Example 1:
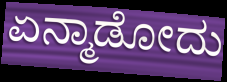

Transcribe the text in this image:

ಏನ್ಮಾಡೋದು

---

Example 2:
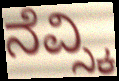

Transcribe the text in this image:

ನೆವ್ಸ್ಕಿ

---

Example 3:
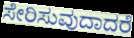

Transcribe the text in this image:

ಸೇರಿಸುವುದಾದರೆ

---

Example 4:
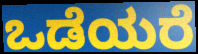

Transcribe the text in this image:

ಒಡೆಯರೆ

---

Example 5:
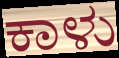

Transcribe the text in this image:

ಕಾಳು